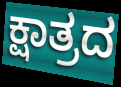
ಕ್ಷಾತ್ರದ